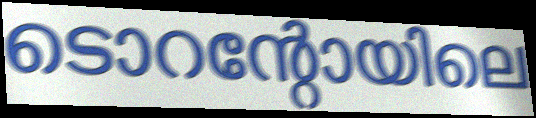
ടൊറന്റോയിലെ